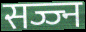
सज्ज्न